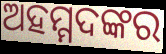
ଅହମ୍ମଦଙ୍କର